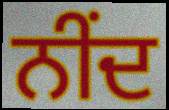
ਨੀਂਦ